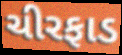
ચીરફાડ